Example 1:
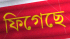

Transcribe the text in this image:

ফিগেছে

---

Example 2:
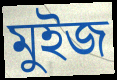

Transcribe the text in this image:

মুইজ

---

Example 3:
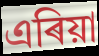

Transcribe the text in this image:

এৰিয়া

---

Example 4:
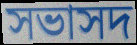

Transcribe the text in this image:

সভাসদ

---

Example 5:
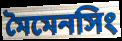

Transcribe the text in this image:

মৈমেনসিং